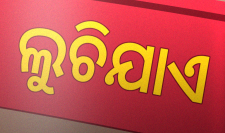
ଲୁଚିଯାଏ